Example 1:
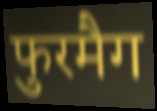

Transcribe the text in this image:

फुरमैग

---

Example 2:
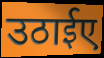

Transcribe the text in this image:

उठाईए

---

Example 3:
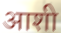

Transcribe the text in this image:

आशी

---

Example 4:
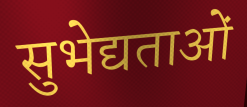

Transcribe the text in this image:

सुभेद्यताओं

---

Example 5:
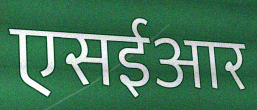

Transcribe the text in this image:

एसईआर